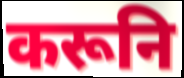
करूनि